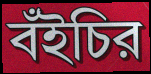
বঁইচির